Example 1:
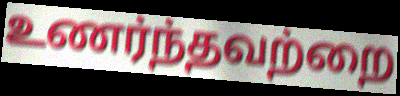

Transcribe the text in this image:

உணர்ந்தவற்றை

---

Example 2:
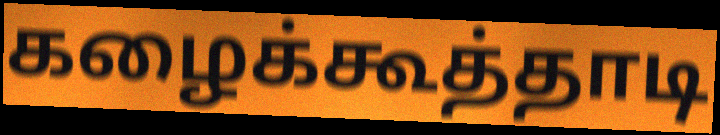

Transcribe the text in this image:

கழைக்கூத்தாடி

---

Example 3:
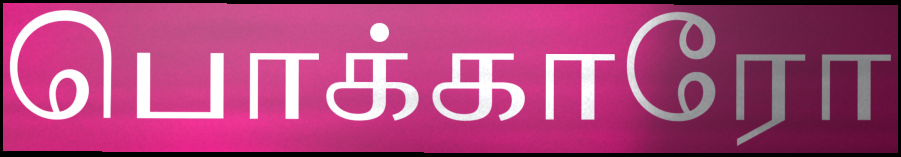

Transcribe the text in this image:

பொக்காரோ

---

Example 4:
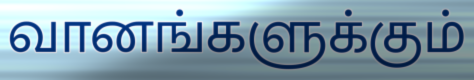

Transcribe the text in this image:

வானங்களுக்கும்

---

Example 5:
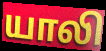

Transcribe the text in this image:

யாலி